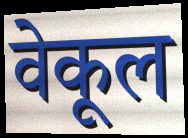
वेकूल